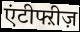
एंटीफ्ऱीज़